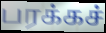
பரக்கச்